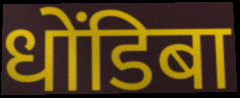
धोंडिबा